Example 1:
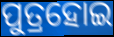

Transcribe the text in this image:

ପୁତ୍ରହୋଇ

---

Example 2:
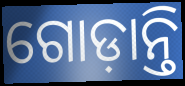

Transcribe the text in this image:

ଗୋଡ଼ାନ୍ତି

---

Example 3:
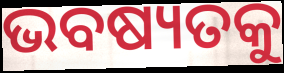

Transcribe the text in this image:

ଭବଷ୍ୟତକୁ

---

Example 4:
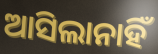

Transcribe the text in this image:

ଆସିଲାନାହିଁ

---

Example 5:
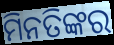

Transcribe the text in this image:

ମିନତିଙ୍କର